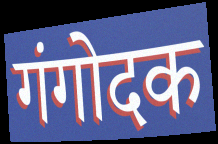
गंगोदक